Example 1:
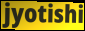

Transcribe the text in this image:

jyotishi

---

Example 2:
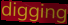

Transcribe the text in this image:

digging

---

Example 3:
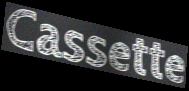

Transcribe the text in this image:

Cassette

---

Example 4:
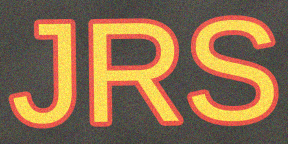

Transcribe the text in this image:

JRS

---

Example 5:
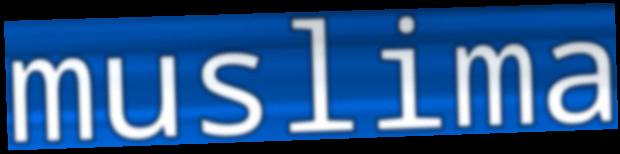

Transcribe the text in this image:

muslima